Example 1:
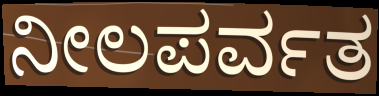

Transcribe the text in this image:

ನೀಲಪರ್ವತ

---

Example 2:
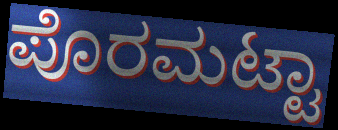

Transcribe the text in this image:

ಪೊರಮಟ್ಟಾ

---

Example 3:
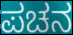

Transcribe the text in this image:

ಪಚನ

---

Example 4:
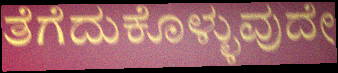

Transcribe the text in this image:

ತೆಗೆದುಕೊಳ್ಳುವುದೇ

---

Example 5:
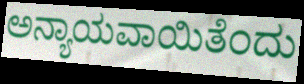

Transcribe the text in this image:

ಅನ್ಯಾಯವಾಯಿತೆಂದು